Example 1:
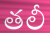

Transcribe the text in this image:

తలీ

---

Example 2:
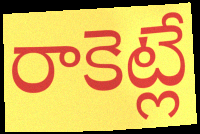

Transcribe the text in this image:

రాకెట్లే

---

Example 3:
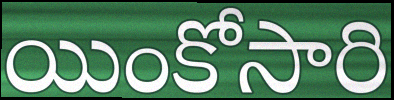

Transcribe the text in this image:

యింకోసారి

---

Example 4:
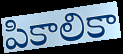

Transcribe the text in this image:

పికాలికా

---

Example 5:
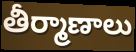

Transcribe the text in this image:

తీర్మాణాలు